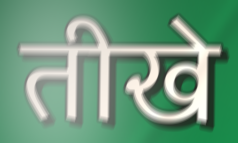
तीखे